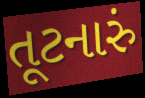
તૂટનારું